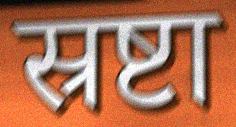
स्रष्टा